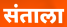
संताला